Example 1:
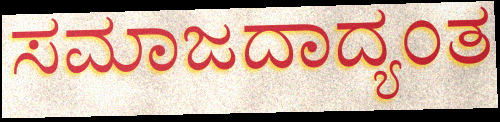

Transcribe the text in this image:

ಸಮಾಜದಾದ್ಯಂತ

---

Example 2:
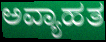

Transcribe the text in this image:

ಅವ್ಯಾಹತ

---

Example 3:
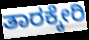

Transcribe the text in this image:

ತಾರಕ್ಕೇರಿ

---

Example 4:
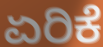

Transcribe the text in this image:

ಏರಿಕೆ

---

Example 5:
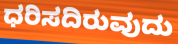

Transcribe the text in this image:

ಧರಿಸದಿರುವುದು